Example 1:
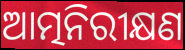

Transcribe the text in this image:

ଆତ୍ମନିରୀକ୍ଷଣ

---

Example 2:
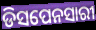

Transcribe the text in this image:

ଡିସପେନସାରୀ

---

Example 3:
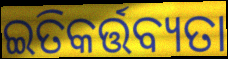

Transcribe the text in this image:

ଇତିକର୍ତ୍ତବ୍ୟତା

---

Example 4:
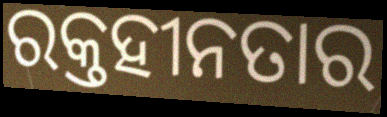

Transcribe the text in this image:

ରକ୍ତହୀନତାର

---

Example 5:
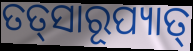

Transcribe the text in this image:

ତତ୍‌ସାରୂପ୍ୟାତ୍